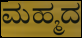
ಮಹ್ಮದ